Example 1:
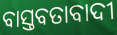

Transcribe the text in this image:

ବାସ୍ତବତାବାଦୀ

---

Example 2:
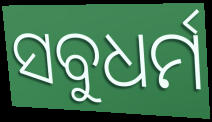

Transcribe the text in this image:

ସବୁଧର୍ମ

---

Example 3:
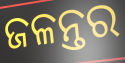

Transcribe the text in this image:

ଜଳନ୍ତର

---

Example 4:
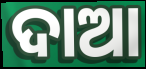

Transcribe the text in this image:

ଦାଆ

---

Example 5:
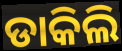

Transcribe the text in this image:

ଡାକିଲି